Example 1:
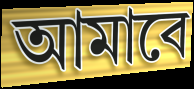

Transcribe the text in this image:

আমাবে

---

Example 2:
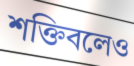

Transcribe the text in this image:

শক্তিবলেও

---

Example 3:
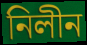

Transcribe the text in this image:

নিলীন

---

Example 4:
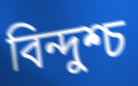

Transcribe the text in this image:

বিন্দুশ্চ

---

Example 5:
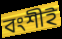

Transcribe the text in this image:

বংশীই